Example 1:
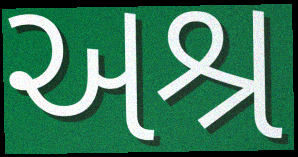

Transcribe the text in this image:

અશ્ર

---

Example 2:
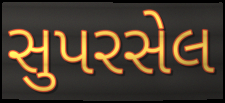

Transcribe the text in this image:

સુપરસેલ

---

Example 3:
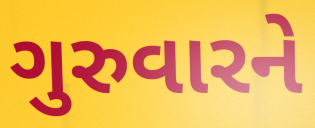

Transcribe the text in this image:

ગુરુવારને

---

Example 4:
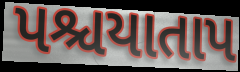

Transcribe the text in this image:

પશ્ચયાતાપ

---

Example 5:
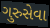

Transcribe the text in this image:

ગુરુસેવા